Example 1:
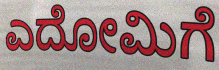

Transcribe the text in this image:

ಎದೋಮಿಗೆ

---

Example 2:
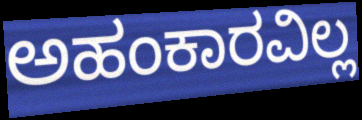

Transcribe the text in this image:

ಅಹಂಕಾರವಿಲ್ಲ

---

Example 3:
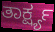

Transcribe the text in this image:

ತಾರ್ಕ್ಷ್ಯ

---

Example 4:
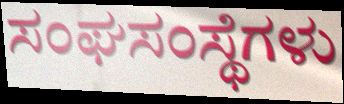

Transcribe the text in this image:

ಸಂಘಸಂಸ್ಥೆಗಳು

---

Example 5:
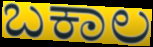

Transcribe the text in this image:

ಬಕಾಲ